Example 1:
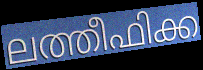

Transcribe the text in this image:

ലത്തീഫിക്ക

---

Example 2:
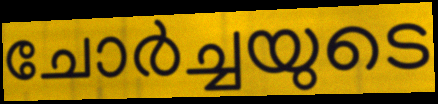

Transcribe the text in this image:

ചോർച്ചയുടെ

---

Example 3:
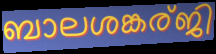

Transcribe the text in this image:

ബാലശങ്കര്ജി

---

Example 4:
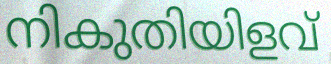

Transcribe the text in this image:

നികുതിയിളവ്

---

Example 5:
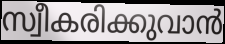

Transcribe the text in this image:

സ്വീകരിക്കുവാൻ